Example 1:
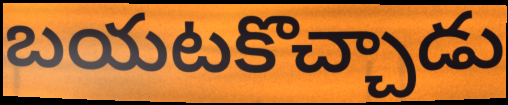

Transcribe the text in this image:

బయటకొచ్చాడు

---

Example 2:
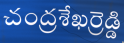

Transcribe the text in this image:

చంద్రశేఖర్రెడ్డి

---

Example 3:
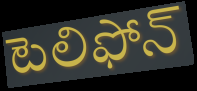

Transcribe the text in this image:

టెలిఫోన్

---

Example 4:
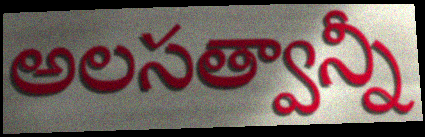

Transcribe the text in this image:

అలసత్వాన్నీ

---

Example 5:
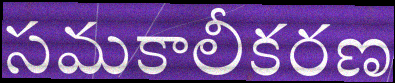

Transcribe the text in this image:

సమకాలీకరణ